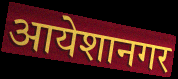
आयेशानगर